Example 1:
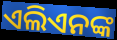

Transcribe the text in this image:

ଏଲିଏନଙ୍କ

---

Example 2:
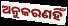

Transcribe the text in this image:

ଅନୁକରଣହିଁ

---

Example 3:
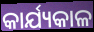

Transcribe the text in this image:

କାର୍ଯ୍ୟକାଳ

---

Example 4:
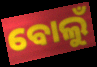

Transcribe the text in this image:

ବୋଲୁଁ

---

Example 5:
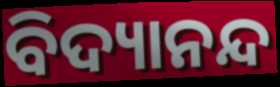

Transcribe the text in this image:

ବିଦ୍ୟାନନ୍ଦ